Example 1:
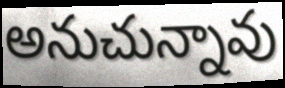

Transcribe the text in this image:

అనుచున్నావు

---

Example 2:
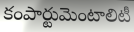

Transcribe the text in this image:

కంపార్టుమెంటాలిటీ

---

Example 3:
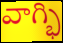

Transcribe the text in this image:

వాగ్భి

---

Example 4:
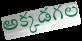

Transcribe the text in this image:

అక్కడగల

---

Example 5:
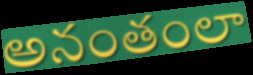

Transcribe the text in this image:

అనంతంలా